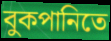
বুকপানিতে